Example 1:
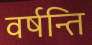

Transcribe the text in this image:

वर्षन्ति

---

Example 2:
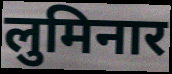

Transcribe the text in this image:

लुमिनार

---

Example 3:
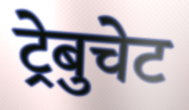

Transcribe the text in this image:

ट्रेबुचेट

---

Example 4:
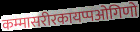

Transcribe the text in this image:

कम्मासरीरकायप्पओगिणो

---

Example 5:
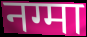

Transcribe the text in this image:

नग्मा